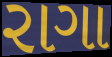
રાગા